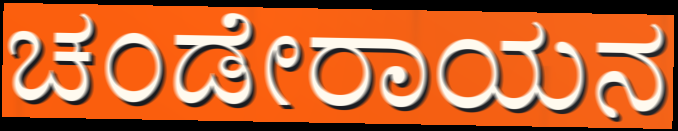
ಚಂಡೇರಾಯನ